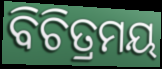
ବିଚିତ୍ରମୟ